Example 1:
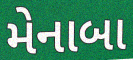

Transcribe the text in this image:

મેનાબા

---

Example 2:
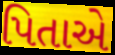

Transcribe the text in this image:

પિતાએ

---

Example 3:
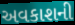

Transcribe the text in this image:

અવકાશની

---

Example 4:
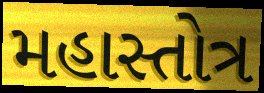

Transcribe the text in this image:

મહાસ્તોત્ર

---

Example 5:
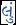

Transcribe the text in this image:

લું